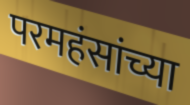
परमहंसांच्या